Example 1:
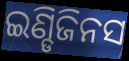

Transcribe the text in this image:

ଇଣ୍ଡିଜିନସ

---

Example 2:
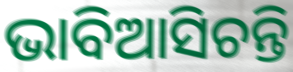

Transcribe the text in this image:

ଭାବିଆସିଚନ୍ତି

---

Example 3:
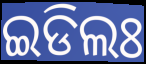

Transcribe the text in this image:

ଇଡିଲଃ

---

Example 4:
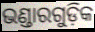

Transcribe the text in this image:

ଭଣ୍ଡାରଗୁଡ଼ିକ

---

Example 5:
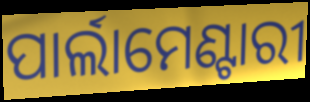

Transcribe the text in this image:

ପାର୍ଲାମେଣ୍ଟାରୀ